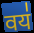
वय॑